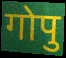
गोपु